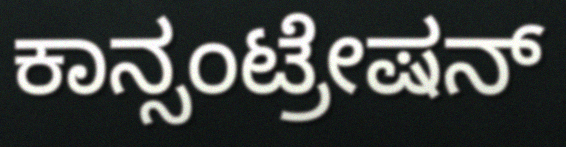
ಕಾನ್ಸಂಟ್ರೇಷನ್